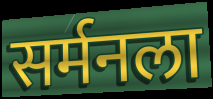
सर्मनला